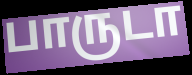
பாருடா